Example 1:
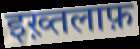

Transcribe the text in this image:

इख़्तलाफ़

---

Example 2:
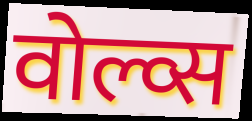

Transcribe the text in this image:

वोल्व्स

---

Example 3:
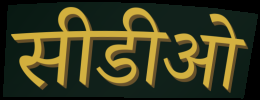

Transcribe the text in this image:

सीडीओ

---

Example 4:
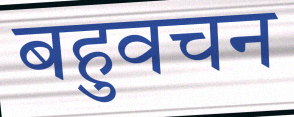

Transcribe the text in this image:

बहुवचन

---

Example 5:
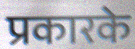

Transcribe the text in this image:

प्रकारके